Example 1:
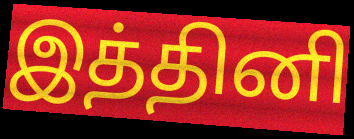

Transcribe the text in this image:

இத்தினி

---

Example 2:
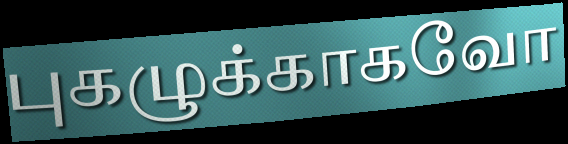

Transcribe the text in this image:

புகழுக்காகவோ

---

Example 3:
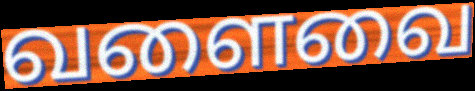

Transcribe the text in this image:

வளைவை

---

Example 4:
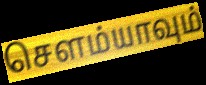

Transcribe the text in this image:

சௌம்யாவும்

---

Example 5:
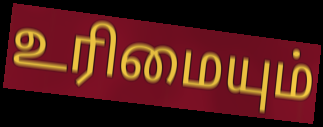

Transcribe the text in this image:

உரிமையும்